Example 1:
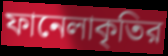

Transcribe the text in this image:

ফানেলাকৃতির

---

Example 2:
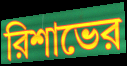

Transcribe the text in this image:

রিশাভের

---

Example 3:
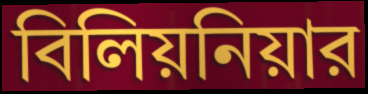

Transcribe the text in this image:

বিলিয়নিয়ার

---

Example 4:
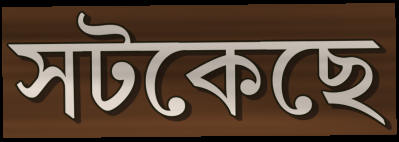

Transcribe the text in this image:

সটকেছে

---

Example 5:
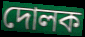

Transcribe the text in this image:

দোলক